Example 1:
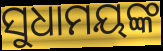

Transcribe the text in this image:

ସୁଧାମୟଙ୍କ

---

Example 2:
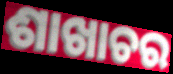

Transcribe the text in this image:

ଶାଖାଚର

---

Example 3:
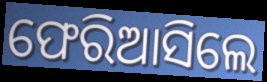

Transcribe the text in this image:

ଫେରିଆସିଲେ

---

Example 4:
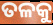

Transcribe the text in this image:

ତଳକୁ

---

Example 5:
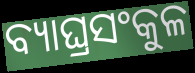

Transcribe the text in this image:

ବ୍ୟାଘ୍ରସଂକୁଳ